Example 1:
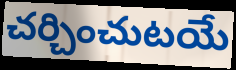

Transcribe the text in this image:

చర్చించుటయే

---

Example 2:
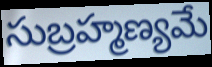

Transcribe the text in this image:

సుబ్రహ్మణ్యమే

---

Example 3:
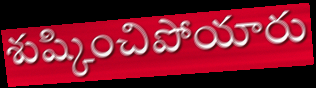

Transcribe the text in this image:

శుష్కించిపోయారు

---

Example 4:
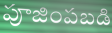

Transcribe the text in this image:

పూజింపబడి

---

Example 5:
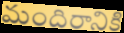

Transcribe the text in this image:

మందిరానికి